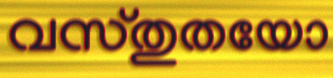
വസ്തുതയോ